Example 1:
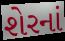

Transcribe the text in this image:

શેરનાં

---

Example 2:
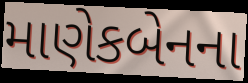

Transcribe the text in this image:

માણેકબેનના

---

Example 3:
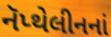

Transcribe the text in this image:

નૅપ્થેલીનનાં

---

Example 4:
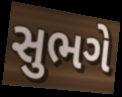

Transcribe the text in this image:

સુભગે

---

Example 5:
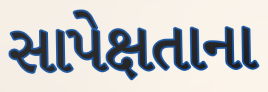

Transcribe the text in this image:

સાપેક્ષતાના